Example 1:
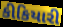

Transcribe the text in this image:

કીકિયારી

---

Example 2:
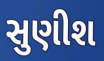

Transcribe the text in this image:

સુણીશ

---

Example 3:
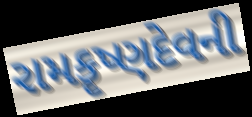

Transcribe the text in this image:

રામકૃષ્ણદેવની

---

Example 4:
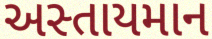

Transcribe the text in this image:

અસ્તાયમાન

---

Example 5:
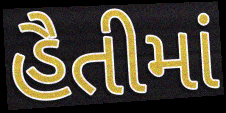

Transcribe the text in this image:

હૈતીમાં